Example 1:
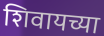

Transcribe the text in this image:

शिवायच्या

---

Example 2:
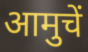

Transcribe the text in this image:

आमुचें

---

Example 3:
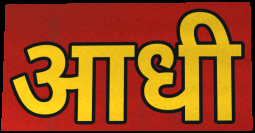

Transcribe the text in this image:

आधी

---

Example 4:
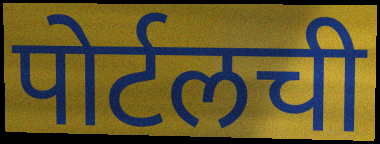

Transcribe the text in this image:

पोर्टलची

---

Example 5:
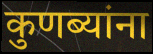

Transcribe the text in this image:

कुणब्यांना